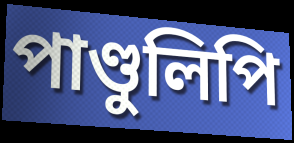
পাণ্ডুলিপি